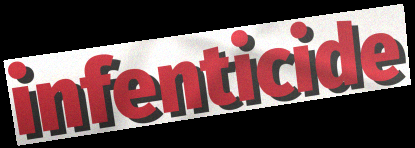
infenticide